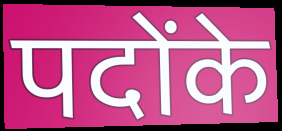
पदोंके